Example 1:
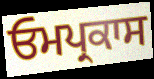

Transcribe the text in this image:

ਓਮਪ੍ਰਕਾਸ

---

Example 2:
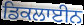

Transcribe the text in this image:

ਡਿਕਲਾਈਨ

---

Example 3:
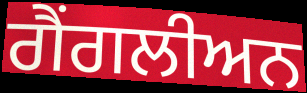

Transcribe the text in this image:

ਗੈਂਗਲੀਅਨ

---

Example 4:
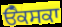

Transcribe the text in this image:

ਓੈਕਸਕਾ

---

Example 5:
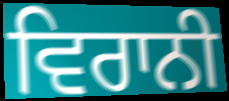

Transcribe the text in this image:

ਵਿਰਾਨੀ